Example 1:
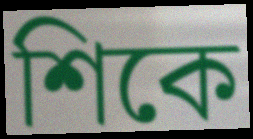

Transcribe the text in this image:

শিকে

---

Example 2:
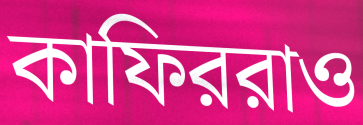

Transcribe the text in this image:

কাফিররাও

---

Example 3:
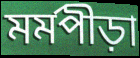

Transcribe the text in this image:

মর্মপীড়া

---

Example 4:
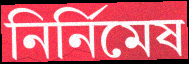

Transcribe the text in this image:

নির্নিমেষ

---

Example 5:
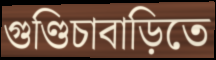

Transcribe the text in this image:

গুণ্ডিচাবাড়িতে